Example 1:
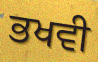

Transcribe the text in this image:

ਭਖਵੀ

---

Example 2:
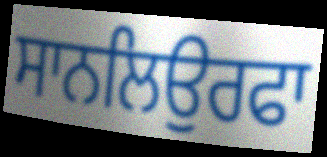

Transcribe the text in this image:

ਸਾਨਲਿਉਰਫਾ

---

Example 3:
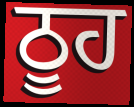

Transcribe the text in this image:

ਠੂਹ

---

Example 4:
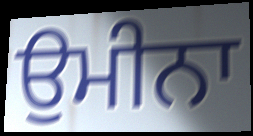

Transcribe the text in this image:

ਉਮੀਨਾ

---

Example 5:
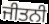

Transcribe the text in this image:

ਜੀਤਨੀ